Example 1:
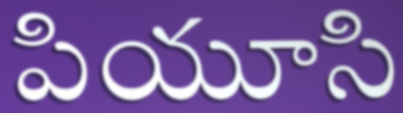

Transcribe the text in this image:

పియూసి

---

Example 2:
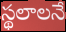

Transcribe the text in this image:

స్థలాలనే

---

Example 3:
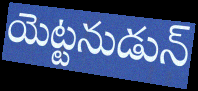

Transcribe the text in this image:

యెట్టనుడున్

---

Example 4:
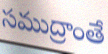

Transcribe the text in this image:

సముద్రాంతే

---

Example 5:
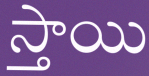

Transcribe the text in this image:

స్తాయి